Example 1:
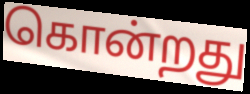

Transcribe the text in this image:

கொன்றது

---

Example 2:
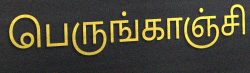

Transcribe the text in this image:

பெருங்காஞ்சி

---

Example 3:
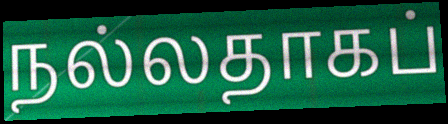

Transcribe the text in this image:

நல்லதாகப்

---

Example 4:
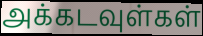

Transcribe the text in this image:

அக்கடவுள்கள்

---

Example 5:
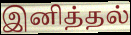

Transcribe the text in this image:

இனித்தல்